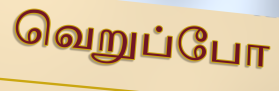
வெறுப்போ